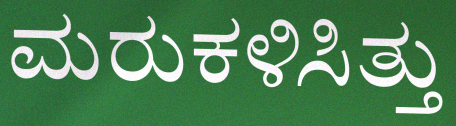
ಮರುಕಳಿಸಿತ್ತು